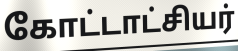
கோட்டாட்சியர்